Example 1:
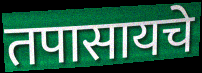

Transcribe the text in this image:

तपासायचे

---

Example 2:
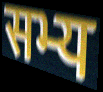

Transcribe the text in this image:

सभ्य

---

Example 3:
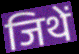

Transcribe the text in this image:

जिथें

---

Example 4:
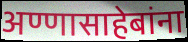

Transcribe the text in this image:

अण्णासाहेबांना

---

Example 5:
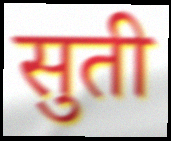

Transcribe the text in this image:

सुती